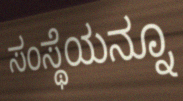
ಸಂಸ್ಥೆಯನ್ನೂ